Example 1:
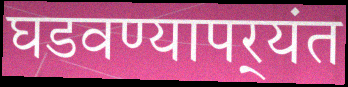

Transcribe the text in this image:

घडवण्यापर्यंत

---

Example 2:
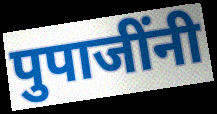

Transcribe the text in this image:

पुपाजींनी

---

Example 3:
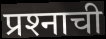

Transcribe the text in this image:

प्रश्‍नाची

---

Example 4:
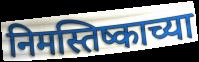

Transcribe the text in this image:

निमस्तिष्काच्या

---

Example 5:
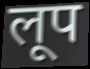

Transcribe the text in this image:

लूप